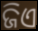
ଜିଏ